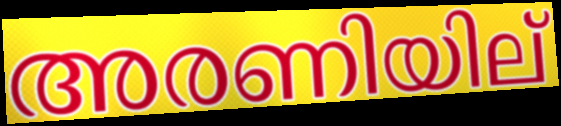
അരണിയില്